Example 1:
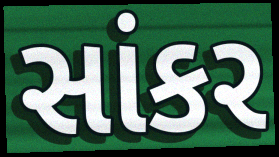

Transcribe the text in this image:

સાંકર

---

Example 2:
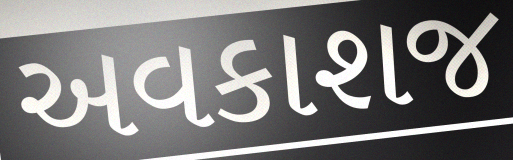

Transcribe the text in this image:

અવકાશજ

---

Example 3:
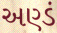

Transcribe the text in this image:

અણ્ડં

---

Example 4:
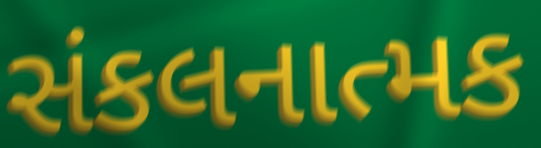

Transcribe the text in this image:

સંકલનાત્મક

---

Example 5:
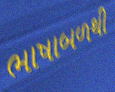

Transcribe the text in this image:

ભાષાબળથી